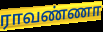
ராவண்ணா